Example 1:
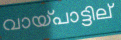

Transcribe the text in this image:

വായ്പാട്ടില്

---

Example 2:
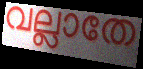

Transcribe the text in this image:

വല്ലാതേ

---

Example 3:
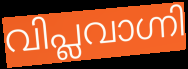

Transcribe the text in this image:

വിപ്ലവാഗ്നി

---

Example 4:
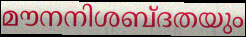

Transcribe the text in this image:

മൗനനിശബ്ദതയും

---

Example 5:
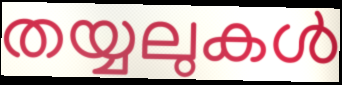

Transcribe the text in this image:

തയ്യലുകൾ